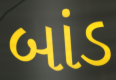
બાંડ